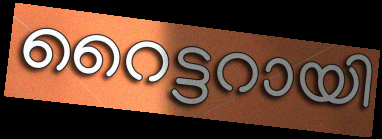
റൈട്ടറായി